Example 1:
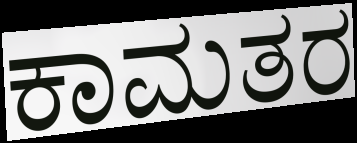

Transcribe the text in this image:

ಕಾಮತರ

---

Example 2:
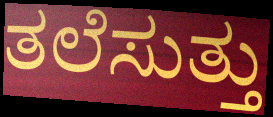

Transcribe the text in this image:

ತಲೆಸುತ್ತು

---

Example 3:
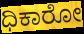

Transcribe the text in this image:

ಧಿಕಾರೋ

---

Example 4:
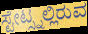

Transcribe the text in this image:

ಸ್ಟೇಟ್ಸ್ನಲ್ಲಿರುವ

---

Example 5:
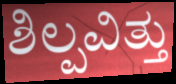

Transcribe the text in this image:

ಶಿಲ್ಪವಿತ್ತು